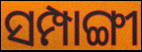
ସମ୍ପାଙ୍ଗୀ